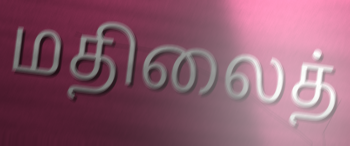
மதிலைத்